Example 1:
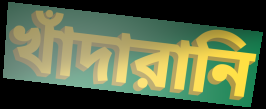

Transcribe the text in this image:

খাঁদারানি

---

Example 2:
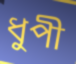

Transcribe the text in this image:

ধুপী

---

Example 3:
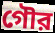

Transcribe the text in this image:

গৌর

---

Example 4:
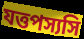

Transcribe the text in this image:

যত্তপস্যসি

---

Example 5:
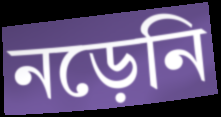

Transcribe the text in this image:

নড়েনি